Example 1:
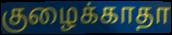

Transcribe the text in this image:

குழைக்காதா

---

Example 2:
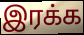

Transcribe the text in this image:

இரக்க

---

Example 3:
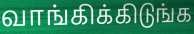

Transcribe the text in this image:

வாங்கிக்கிடுங்க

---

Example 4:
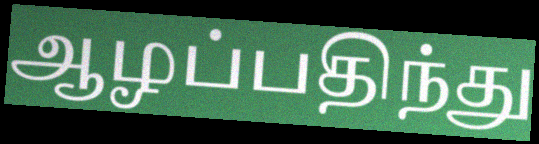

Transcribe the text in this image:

ஆழப்பதிந்து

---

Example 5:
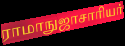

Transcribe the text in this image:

ராமாநுஜாசாரியர்